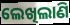
ଲେଖିଲାଣି